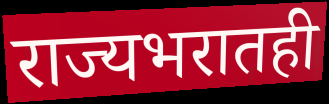
राज्यभरातही